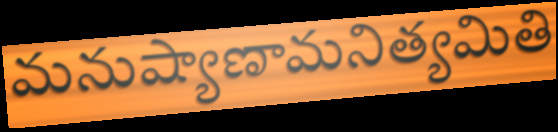
మనుష్యాణామనిత్యమితి